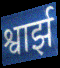
श्वार्झ